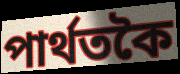
পাৰ্থতকৈ